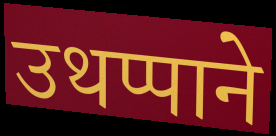
उथप्पाने